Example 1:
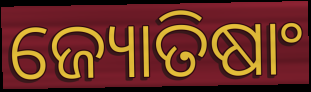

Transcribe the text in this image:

ଜ୍ୟୋତିଷାଂ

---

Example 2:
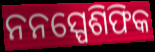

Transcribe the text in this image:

ନନସ୍ପେଶିଫିକ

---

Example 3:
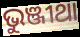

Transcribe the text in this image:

ଭୁଞ୍ଜୀଥା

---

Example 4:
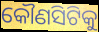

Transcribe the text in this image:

କୌଣସିଟିକୁ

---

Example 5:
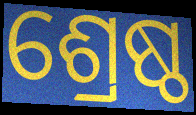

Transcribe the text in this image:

ଶ୍ରେଷ୍ଠ